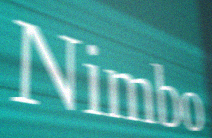
Nimbo